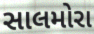
સાલમોરા